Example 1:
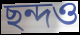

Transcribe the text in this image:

ছন্দও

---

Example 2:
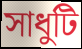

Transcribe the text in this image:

সাধুটি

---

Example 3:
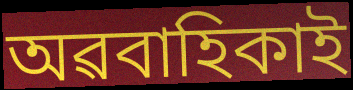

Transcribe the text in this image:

অৱবাহিকাই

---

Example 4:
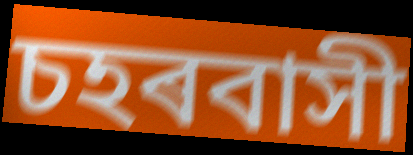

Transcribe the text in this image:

চহৰবাসী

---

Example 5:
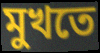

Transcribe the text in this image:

মুখতে